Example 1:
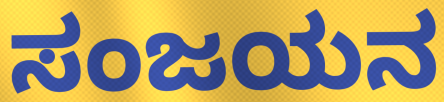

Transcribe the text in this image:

ಸಂಜಯನ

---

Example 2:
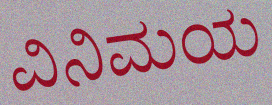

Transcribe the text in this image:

ವಿನಿಮಯ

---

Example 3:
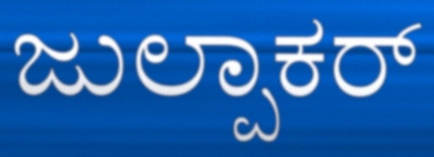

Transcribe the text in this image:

ಜುಲ್ಪಾಕರ್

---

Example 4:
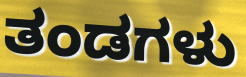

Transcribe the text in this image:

ತಂಡಗಳು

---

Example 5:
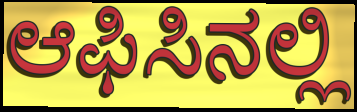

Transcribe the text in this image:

ಆಫಿಸಿನಲ್ಲಿ